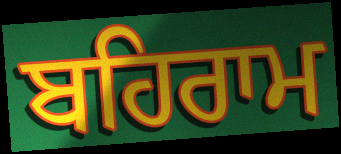
ਬਹਿਰਾਮ